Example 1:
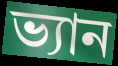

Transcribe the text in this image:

ভ্যান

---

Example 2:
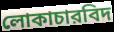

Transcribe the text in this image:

লোকাচারবিদ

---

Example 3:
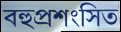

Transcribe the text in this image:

বহুপ্রশংসিত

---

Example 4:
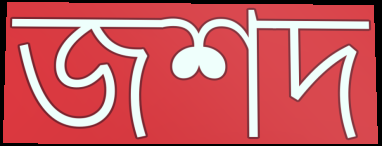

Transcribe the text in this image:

জশদ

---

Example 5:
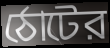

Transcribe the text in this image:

ঠোটের